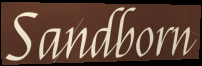
Sandborn